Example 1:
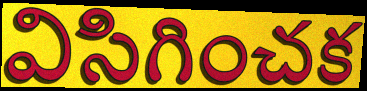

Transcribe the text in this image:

విసిగించక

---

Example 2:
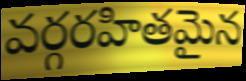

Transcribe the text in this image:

వర్గరహితమైన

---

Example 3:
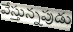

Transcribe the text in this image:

వేస్తున్నపుడు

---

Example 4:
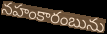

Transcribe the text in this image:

నహంకారంబును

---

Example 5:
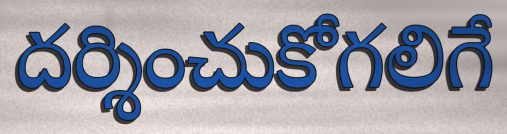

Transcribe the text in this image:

దర్శించుకోగలిగే